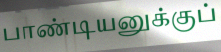
பாண்டியனுக்குப்